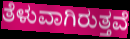
ತೆಳುವಾಗಿರುತ್ತವೆ